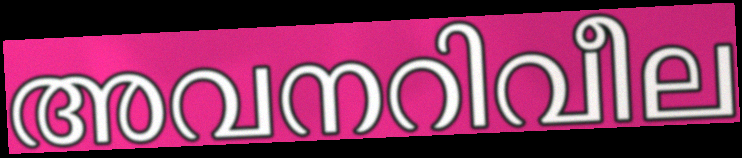
അവനറിവീല